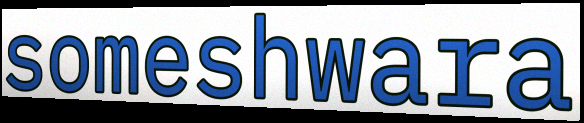
someshwara